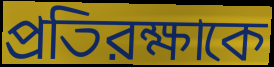
প্রতিরক্ষাকে